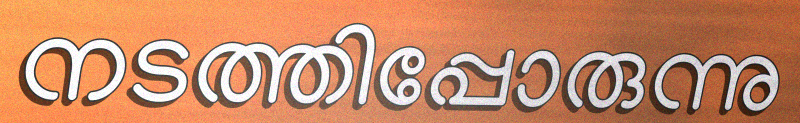
നടത്തിപ്പോരുന്നു